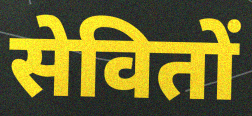
सेवितों